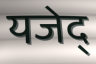
यजेद्